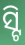
ସ୍ଟି